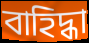
বাহিদ্ধা